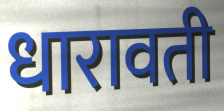
धारावती